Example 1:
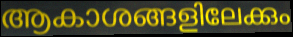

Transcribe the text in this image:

ആകാശങ്ങളിലേക്കും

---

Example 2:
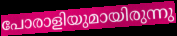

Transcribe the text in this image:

പോരാളിയുമായിരുന്നു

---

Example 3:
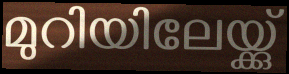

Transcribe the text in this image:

മുറിയിലേയ്ക്കു്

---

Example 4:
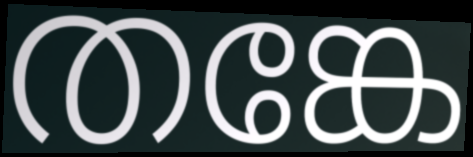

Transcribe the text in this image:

തങ്കേ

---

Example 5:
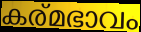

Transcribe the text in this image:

കര്മഭാവം